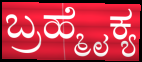
ಬ್ರಹ್ಮೈಕ್ಯ